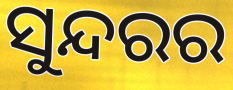
ସୁନ୍ଦରର